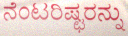
ನೆಂಟರಿಷ್ಟರನ್ನು